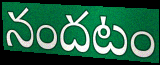
నందటం